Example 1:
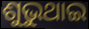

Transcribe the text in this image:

ଶୁଭୁଥାଇ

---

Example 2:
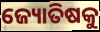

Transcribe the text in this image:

ଜ୍ୟୋତିଷକୁ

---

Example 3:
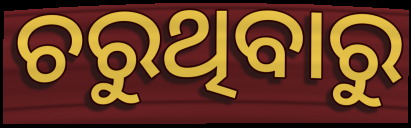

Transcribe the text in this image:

ଚରୁଥିବାରୁ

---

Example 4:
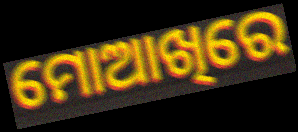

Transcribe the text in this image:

ମୋଆଖିରେ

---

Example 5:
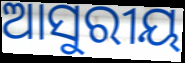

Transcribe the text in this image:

ଆସୁରୀୟ